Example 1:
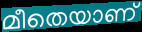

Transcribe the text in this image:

മീതെയാണ്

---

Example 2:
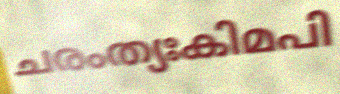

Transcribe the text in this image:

ചരംത്യഃകിമപി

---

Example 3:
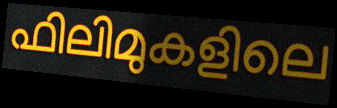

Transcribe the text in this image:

ഫിലിമുകളിലെ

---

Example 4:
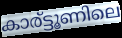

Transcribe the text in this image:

കാര്ട്ടൂണിലെ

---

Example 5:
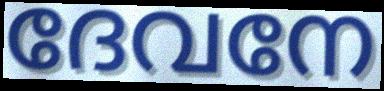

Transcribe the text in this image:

ദേവനേ